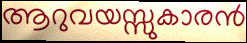
ആറുവയസ്സുകാരൻ